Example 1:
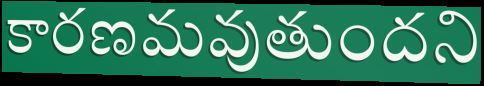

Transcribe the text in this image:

కారణమవుతుందని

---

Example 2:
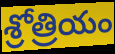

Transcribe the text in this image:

శ్రోత్రియం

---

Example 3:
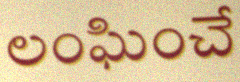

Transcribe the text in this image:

లంఘించే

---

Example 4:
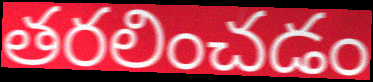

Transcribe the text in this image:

తరలించడం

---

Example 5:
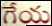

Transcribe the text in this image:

గేయ